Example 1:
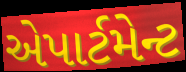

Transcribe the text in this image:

એપાર્ટમેન્ટ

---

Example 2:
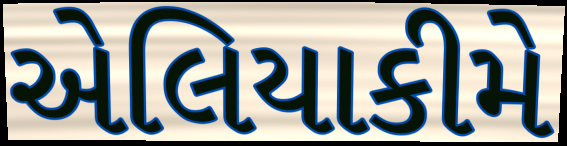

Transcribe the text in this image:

એલિયાકીમે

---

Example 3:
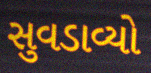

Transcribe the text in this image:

સુવડાવ્યો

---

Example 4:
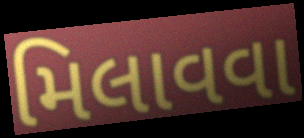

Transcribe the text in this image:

મિલાવવા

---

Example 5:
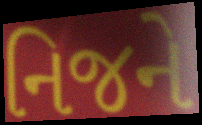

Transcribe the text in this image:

નિજને